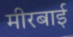
मीरबाई